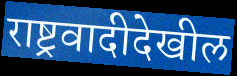
राष्ट्रवादीदेखील